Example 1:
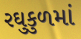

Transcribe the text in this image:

રઘુકુળમાં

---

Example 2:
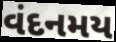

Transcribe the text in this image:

વંદનમય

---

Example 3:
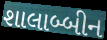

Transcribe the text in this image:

શાલાબ્બીન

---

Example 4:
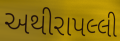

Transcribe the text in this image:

અથીરાપલ્લી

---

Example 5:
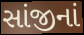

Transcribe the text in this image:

સાંજીનાં